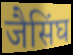
जैसिंघ